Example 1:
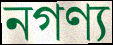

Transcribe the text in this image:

নগণ্য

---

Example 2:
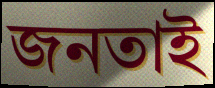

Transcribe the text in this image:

জনতাই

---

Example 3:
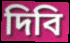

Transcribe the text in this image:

দিবি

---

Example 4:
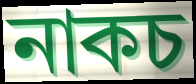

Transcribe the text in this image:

নাকচ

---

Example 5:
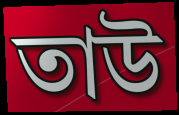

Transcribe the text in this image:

তাউ